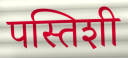
पस्तिशी